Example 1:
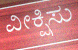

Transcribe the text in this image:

ವೀಕ್ಷಿಸು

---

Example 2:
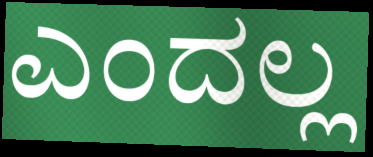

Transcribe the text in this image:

ಎಂದಲ್ಲ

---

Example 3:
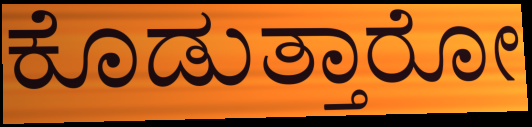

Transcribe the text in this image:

ಕೊಡುತ್ತಾರೋ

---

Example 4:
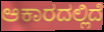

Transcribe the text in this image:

ಆಕಾರದಲ್ಲಿದೆ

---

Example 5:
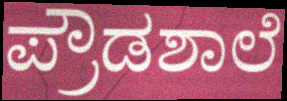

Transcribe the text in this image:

ಪ್ರೌಡಶಾಲೆ